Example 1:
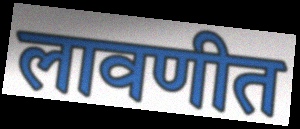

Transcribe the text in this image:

लावणीत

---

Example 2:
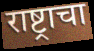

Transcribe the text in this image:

राष्ट्राचा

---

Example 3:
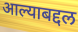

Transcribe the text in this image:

आल्याबद्दल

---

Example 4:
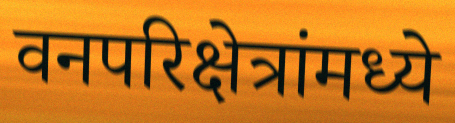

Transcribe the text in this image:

वनपरिक्षेत्रांमध्ये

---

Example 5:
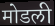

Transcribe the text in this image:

मोडली